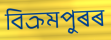
বিক্ৰমপুৰৰ